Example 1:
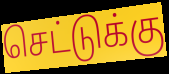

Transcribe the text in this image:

செட்டுக்கு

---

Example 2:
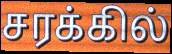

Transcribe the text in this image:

சரக்கில்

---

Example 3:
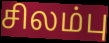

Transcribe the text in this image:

சிலம்பு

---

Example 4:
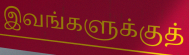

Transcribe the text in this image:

இவங்களுக்குத்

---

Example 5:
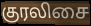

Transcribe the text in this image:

குரலிசை